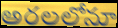
అరలలోనూ